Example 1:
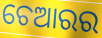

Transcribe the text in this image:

ଚେଆରର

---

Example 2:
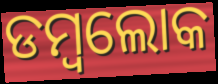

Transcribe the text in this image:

ଡମ୍ବଲୋକ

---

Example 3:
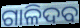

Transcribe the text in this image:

ଗାଳିଦବ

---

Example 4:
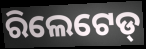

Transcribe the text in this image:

ରିଲେଟେଡ୍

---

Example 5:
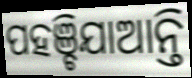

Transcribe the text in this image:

ପହଞ୍ଚିଯାଆନ୍ତି